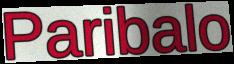
Paribalo